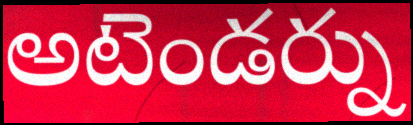
అటెండర్ను